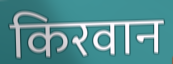
किरवान